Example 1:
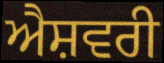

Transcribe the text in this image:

ਐਸ਼ਵਰੀ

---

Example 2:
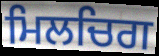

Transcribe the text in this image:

ਮਿਲਚਿਗ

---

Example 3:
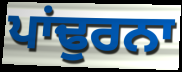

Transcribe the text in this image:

ਪਾਂਢੁਰਨਾ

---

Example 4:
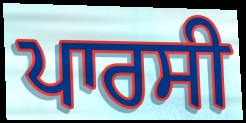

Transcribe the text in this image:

ਪਾਰਸੀ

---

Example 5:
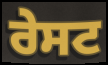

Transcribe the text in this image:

ਰੇਸਟ